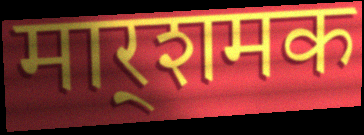
मार्शमक